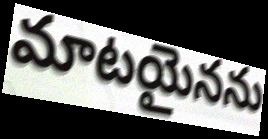
మాటయైనను